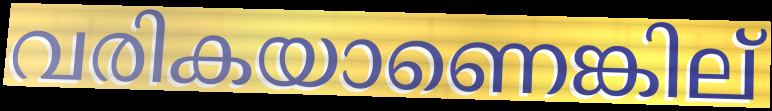
വരികയാണെങ്കില്